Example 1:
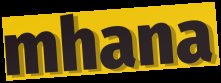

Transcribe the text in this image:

mhana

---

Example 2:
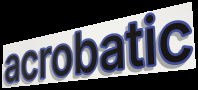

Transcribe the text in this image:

acrobatic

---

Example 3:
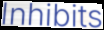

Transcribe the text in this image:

Inhibits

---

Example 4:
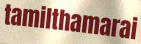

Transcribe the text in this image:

tamilthamarai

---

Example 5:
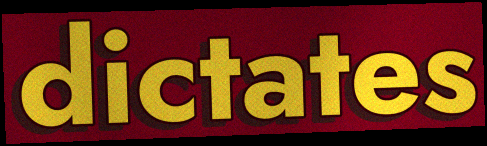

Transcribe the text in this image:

dictates